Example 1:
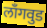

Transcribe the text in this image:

लाँगवुड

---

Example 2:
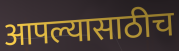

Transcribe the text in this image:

आपल्यासाठीच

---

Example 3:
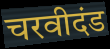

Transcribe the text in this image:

चरवीदंड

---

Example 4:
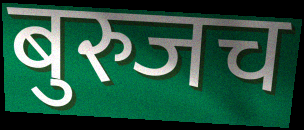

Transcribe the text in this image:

बुरुजच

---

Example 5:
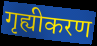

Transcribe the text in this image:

गृह्यीकरण